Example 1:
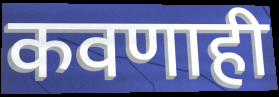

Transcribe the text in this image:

कवणाही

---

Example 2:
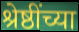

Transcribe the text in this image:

श्रेष्ठींच्या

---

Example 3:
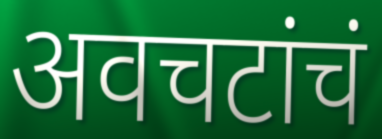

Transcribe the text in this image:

अवचटांचं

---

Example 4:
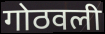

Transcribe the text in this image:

गोठवली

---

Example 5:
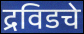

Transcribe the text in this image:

द्रविडचे